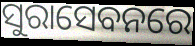
ସୁରାସେବନରେ